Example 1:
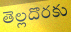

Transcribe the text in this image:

తెల్లదొరకు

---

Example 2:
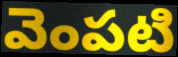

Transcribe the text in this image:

వెంపటి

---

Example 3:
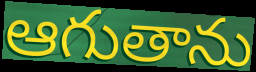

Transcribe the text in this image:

ఆగుతాను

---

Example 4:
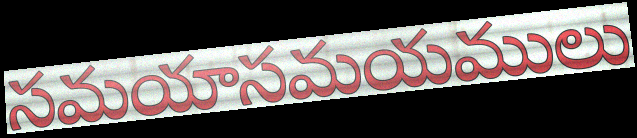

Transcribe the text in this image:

సమయాసమయములు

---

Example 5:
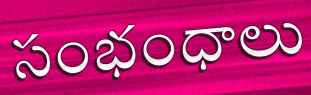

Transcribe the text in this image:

సంభంధాలు